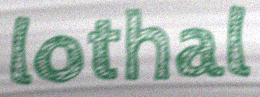
lothal